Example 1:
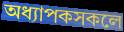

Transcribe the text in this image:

অধ্যাপকসকলে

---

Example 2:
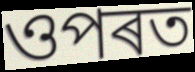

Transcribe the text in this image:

ওপৰত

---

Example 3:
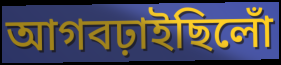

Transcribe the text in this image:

আগবঢ়াইছিলোঁ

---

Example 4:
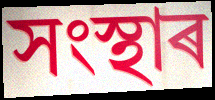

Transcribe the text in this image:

সংস্থাৰ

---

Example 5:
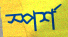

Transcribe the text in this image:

স্পৰ্শ